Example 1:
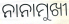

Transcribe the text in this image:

ନାନାମୁଖୀ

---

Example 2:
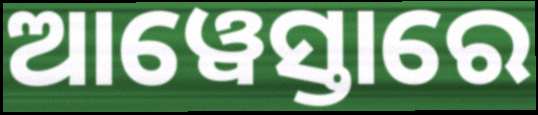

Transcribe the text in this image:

ଆୱେସ୍ତାରେ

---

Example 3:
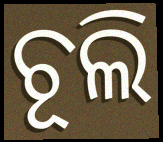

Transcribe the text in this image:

ଚୂଲି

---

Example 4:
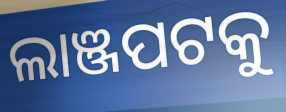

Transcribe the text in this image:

ଲାଞ୍ଜପଟକୁ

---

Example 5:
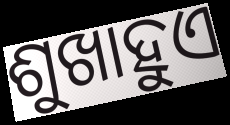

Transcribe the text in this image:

ଶୁଖାହୁଏ